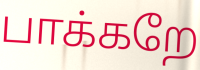
பாக்கறே